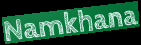
Namkhana